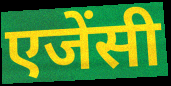
एजेंसी